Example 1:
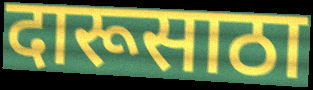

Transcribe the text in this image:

दारूसाठा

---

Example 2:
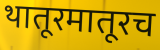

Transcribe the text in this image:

थातूरमातूरच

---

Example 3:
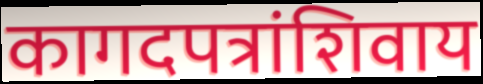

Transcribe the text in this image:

कागदपत्रांशिवाय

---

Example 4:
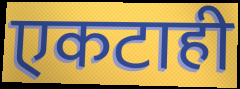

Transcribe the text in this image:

एकटाही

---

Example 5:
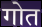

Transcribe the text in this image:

गोत